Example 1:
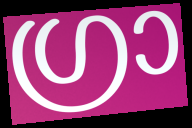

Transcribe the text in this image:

ഗ്രാ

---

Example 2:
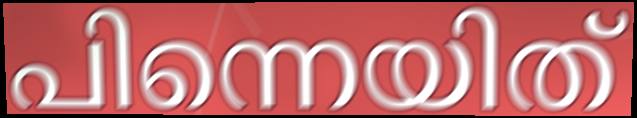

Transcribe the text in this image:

പിന്നെയിത്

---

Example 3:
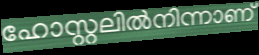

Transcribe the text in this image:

ഹോസ്റ്റലിൽനിന്നാണ്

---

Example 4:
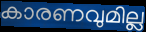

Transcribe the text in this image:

കാരണവുമില്ല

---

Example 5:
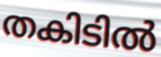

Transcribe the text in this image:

തകിടിൽ